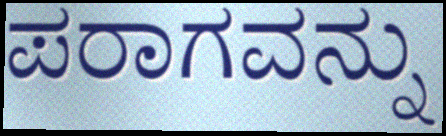
ಪರಾಗವನ್ನು